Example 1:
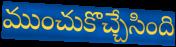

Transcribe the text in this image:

ముంచుకొచ్చేసింది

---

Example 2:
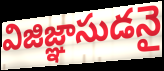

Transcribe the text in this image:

విజిజ్ఞాసుడనై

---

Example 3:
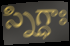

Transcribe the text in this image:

స్నిగ్ధాః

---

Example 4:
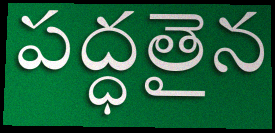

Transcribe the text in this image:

పద్ధతైన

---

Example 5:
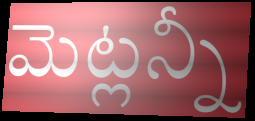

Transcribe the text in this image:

మెట్లన్నీ